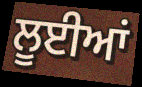
ਲੂਈਆਂ